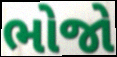
ભોજો